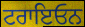
ਟਰਾਇਓਨ